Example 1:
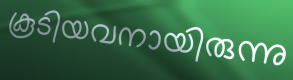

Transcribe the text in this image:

കൂടിയവനായിരുന്നു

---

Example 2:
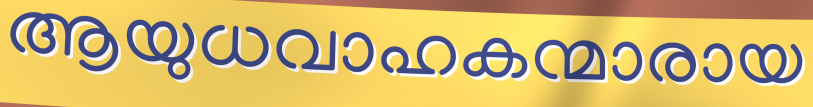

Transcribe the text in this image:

ആയുധവാഹകന്മാരായ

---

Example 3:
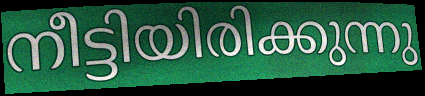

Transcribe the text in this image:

നീട്ടിയിരിക്കുന്നു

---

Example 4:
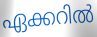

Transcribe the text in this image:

ഏക്കറിൽ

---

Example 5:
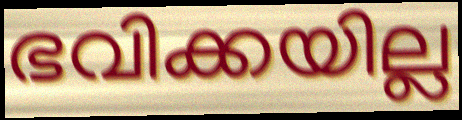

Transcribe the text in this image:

ഭവിക്കയില്ല